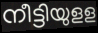
നീട്ടിയുളള